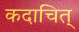
कदाचित्